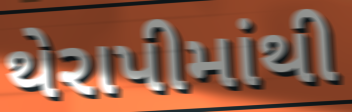
થેરાપીમાંથી